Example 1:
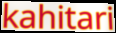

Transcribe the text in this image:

kahitari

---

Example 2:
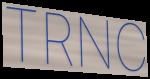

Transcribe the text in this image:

TRNC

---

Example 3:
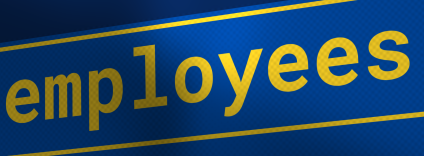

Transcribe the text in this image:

employees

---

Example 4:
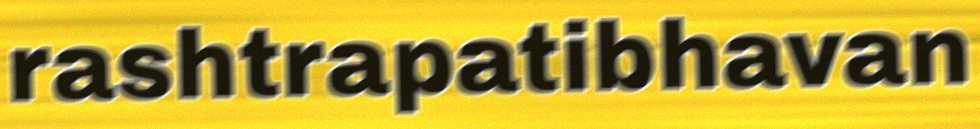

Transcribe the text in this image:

rashtrapatibhavan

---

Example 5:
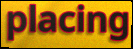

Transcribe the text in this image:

placing